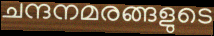
ചന്ദനമരങ്ങളുടെ